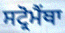
ਸਟ੍ਰੋਮੈਂਥਾ